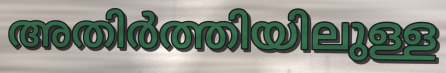
അതിർത്തിയിലുള്ള